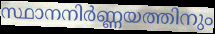
സ്ഥാനനിർണ്ണയത്തിനും